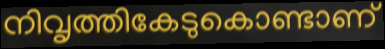
നിവൃത്തികേടുകൊണ്ടാണ്